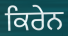
ਕਿਰੇਨ